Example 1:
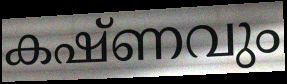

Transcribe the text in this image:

കഷ്ണവും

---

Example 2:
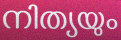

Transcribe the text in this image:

നിത്യയും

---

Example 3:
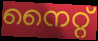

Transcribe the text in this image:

നൈറ്റ്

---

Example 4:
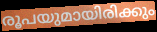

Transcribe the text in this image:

രൂപയുമായിരിക്കും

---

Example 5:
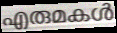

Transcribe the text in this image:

എരുമകൾ